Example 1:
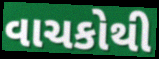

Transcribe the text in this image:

વાચકોથી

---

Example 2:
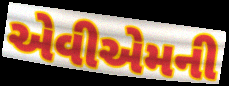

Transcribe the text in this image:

એવીએમની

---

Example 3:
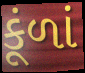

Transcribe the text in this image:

કૂંળાં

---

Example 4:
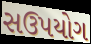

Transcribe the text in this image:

સઉપયોગ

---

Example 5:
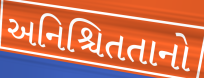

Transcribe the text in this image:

અનિશ્ચિતતાનો